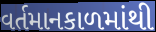
વર્તમાનકાળમાંથી